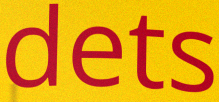
dets